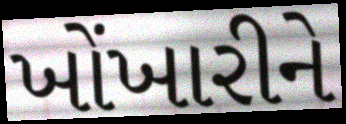
ખોંખારીને